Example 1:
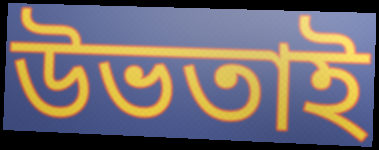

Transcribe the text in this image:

উভতাই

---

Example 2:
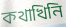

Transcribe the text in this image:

কথাখিনি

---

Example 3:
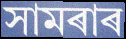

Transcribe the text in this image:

সামৰাৰ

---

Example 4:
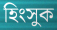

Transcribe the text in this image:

হিংসুক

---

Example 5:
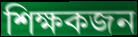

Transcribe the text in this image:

শিক্ষকজন